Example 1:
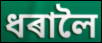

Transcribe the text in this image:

ধৰালৈ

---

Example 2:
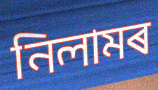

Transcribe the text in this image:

নিলামৰ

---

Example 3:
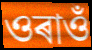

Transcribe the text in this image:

ওৰাওঁ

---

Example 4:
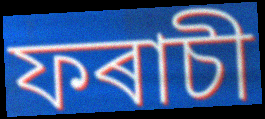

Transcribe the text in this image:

ফৰাচী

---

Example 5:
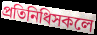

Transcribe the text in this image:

প্ৰতিনিধিসকলে